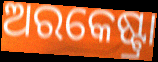
ଅରକେଷ୍ଟ୍ରା